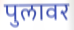
पुलावर